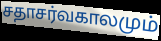
சதாசர்வகாலமும்